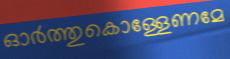
ഓർത്തുകൊള്ളേണമേ